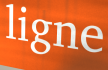
ligne